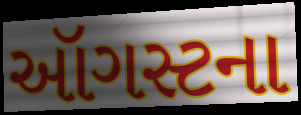
ઑગસ્ટના